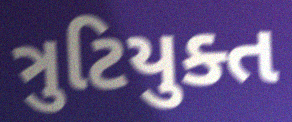
ત્રુટિયુક્ત